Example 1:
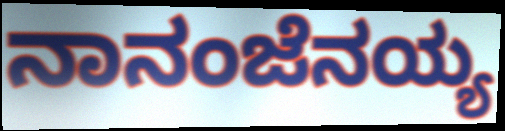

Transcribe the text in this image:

ನಾನಂಜೆನಯ್ಯ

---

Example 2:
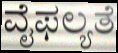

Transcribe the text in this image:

ವೈಫಲ್ಯತೆ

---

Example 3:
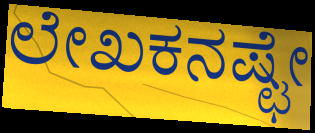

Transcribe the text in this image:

ಲೇಖಕನಷ್ಟೇ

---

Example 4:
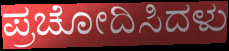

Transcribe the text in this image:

ಪ್ರಚೋದಿಸಿದಳು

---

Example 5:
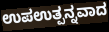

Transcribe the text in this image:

ಉಪಉತ್ಪನ್ನವಾದ